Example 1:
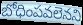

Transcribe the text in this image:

బోధింపవలెనని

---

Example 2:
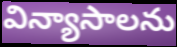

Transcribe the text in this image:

విన్యాసాలను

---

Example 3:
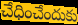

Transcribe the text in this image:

చేధించేందుకు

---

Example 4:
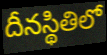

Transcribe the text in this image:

దీనస్థితిలో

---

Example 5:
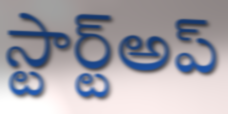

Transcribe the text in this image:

స్టార్ట్అప్